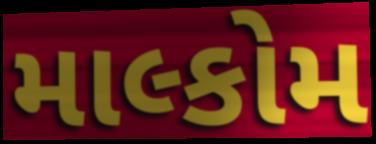
માલ્કોમ